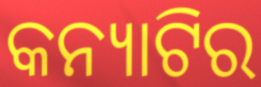
କନ୍ୟାଟିର